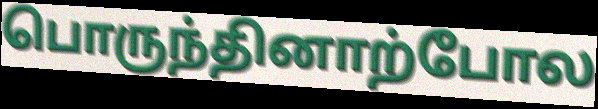
பொருந்தினாற்போல